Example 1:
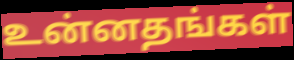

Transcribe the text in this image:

உன்னதங்கள்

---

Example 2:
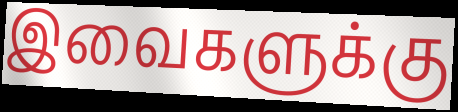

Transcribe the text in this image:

இவைகளுக்கு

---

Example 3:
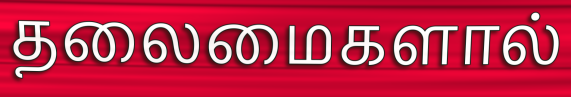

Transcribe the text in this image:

தலைமைகளால்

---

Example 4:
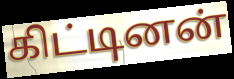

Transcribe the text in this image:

கிட்டினன்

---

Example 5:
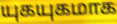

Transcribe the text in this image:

யுகயுகமாக